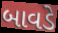
બાવડે